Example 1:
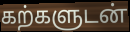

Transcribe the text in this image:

கற்களுடன்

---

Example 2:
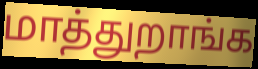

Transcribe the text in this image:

மாத்துறாங்க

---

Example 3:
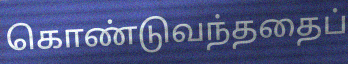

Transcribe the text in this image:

கொண்டுவந்ததைப்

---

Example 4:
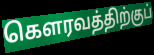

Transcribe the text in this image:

கௌரவத்திற்குப்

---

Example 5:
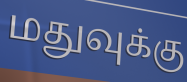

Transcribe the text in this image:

மதுவுக்கு